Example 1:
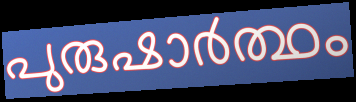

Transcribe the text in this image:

പുരുഷാർത്ഥം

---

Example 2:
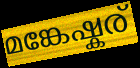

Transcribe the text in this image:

മങ്കേഷ്കര്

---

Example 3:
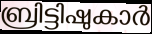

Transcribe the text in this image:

ബ്രിട്ടിഷുകാർ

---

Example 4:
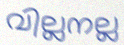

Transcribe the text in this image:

വില്ലനല്ല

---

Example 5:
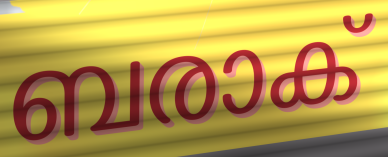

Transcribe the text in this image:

ബരാക്